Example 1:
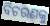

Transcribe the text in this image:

ବିଚରଣକୁ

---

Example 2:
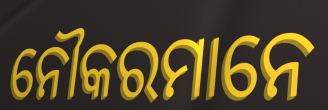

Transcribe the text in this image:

ନୌକରମାନେ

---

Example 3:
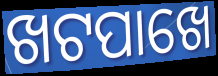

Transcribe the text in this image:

ଖଟପାଖେ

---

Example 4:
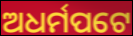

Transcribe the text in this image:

ଅଧର୍ମପଟେ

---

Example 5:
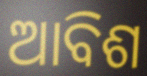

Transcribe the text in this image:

ଆବିଶ